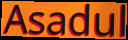
Asadul